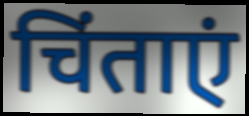
चिंताएं